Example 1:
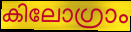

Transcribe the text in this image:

കിലോഗ്രാം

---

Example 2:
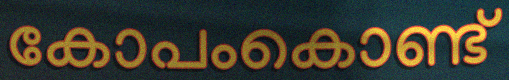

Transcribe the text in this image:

കോപംകൊണ്ട്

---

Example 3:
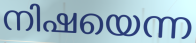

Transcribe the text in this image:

നിഷയെന്ന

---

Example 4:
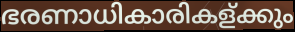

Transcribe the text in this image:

ഭരണാധികാരികള്ക്കും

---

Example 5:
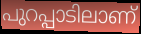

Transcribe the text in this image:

പുറപ്പാടിലാണ്